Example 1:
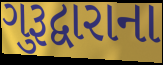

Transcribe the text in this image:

ગુરૂદ્વારાના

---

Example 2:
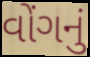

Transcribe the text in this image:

વોંગનું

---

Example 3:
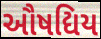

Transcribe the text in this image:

ઔષદ્યિય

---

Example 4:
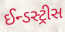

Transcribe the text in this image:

ઈન્ડસ્ટ્રીસ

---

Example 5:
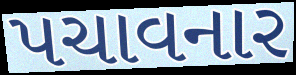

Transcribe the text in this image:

પચાવનાર